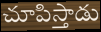
చూపిస్తాడు